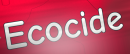
Ecocide